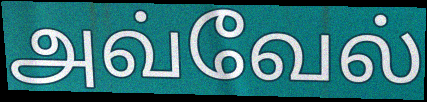
அவ்வேல்